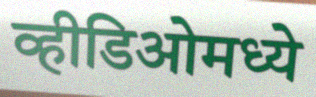
व्हीडिओमध्ये